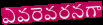
ఎవరెవరనగా